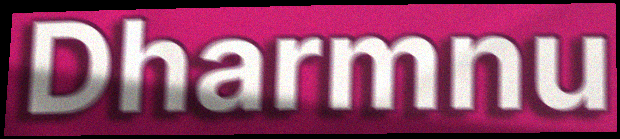
Dharmnu